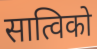
सात्विको